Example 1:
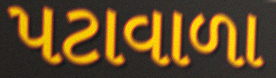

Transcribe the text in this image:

પટાવાળા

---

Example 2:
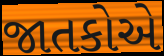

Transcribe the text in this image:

જાતકોએ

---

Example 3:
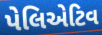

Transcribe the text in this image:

પેલિએટિવ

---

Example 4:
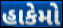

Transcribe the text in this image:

હાકેમો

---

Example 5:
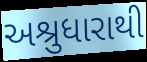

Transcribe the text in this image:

અશ્રુધારાથી